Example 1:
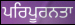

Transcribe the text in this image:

ਪਰਿਪੂਰਨਤਾ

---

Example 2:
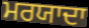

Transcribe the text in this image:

ਮਰਯਾਦਾ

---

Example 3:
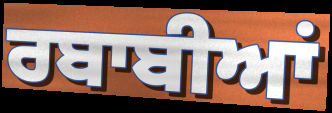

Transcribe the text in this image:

ਰਬਾਬੀਆਂ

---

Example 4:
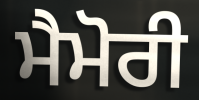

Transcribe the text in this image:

ਮੈਮੋਰੀ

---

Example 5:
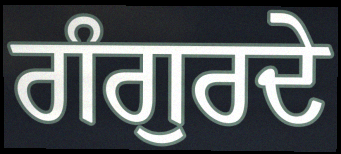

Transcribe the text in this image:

ਗੰਗੁਰਦੇ